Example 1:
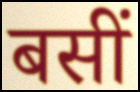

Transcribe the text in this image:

बसीं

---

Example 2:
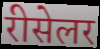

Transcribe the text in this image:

रीसेलर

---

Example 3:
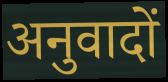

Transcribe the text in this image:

अनुवादों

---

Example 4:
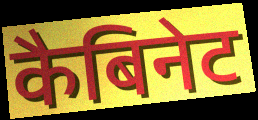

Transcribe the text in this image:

कैबिनेट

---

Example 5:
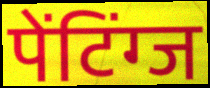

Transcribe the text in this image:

पेंटिंग्ज